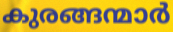
കുരങ്ങന്മാർ